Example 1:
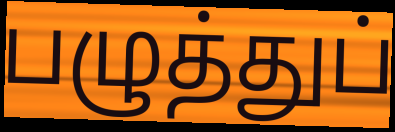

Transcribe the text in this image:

பழுத்துப்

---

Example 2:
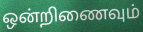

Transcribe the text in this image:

ஒன்றிணைவும்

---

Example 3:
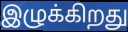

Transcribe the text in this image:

இழுக்கிறது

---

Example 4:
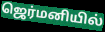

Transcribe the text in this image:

ஜெர்மனியில்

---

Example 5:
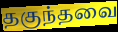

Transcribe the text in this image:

தகுந்தவை